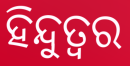
ହିନ୍ଦୁତ୍ବର